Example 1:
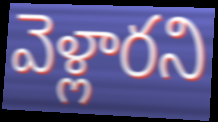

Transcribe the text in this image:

వెళ్లారని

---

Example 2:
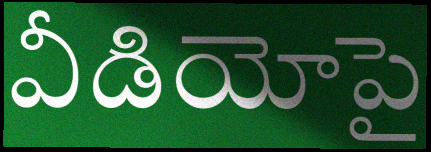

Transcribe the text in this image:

వీడియోపై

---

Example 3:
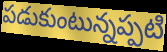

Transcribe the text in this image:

పడుకుంటున్నప్పటి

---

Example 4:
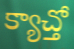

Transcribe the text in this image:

క్యాచ్తో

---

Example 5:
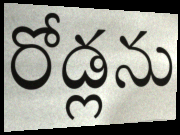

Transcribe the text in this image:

రోడ్లను